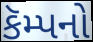
કૅમ્પનો